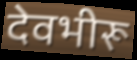
देवभीरू